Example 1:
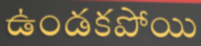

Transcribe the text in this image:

ఉండకపోయి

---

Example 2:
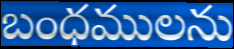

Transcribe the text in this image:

బంధములను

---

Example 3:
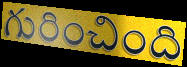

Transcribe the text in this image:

గురించింది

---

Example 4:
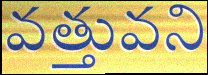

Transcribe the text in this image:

వత్తువని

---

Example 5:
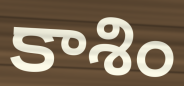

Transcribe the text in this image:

కాశిం